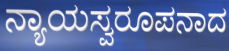
ನ್ಯಾಯಸ್ವರೂಪನಾದ